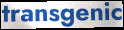
transgenic